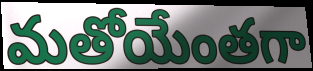
మతోయేంతగా